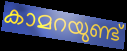
കാമറയുണ്ട്